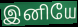
இனியே